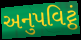
અનુપવિટ્ઠં